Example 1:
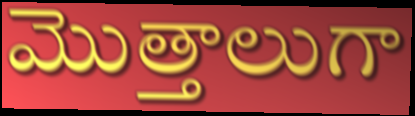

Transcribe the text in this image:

మొత్తాలుగా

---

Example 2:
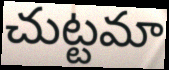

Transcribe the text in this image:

చుట్టమా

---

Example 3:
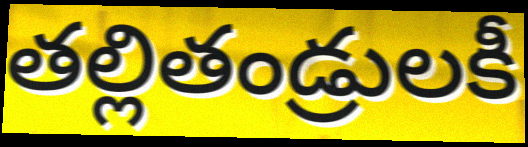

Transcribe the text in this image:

తల్లితండ్రులకీ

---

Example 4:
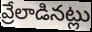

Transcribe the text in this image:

వ్రేలాడినట్లు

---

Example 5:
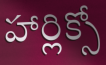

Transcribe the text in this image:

హార్లిక్సో